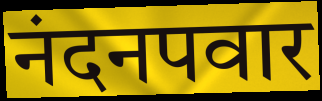
नंदनपवार